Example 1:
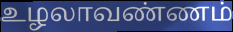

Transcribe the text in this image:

உழலாவண்ணம்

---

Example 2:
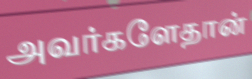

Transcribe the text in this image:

அவர்களேதான்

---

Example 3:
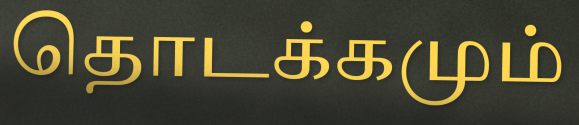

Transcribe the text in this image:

தொடக்கமும்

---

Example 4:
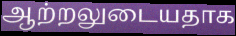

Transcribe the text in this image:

ஆற்றலுடையதாக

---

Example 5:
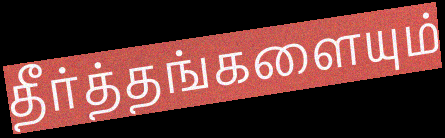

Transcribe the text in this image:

தீர்த்தங்களையும்